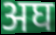
अघ